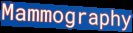
Mammography